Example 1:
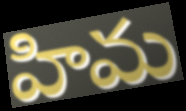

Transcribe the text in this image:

హిమ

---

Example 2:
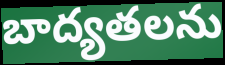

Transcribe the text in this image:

బాద్యతలను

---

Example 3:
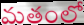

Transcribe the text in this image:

మతంలో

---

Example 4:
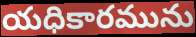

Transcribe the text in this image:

యధికారమును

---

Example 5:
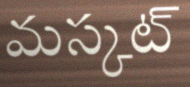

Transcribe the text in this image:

మస్కట్